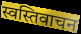
स्वस्तिवाचन